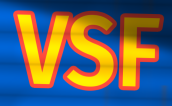
VSF